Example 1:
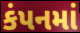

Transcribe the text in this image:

કંપનમાં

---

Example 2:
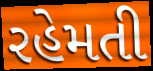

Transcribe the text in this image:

રહેમતી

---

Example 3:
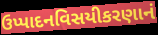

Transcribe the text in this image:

ઉપ્પાદનવિસયીકરણાનં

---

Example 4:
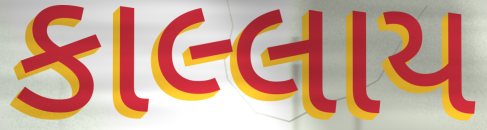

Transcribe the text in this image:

કાલ્લાય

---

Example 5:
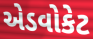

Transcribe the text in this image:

એડવોકેટ